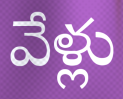
వేళ్లు